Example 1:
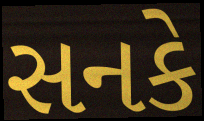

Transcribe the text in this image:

સનકે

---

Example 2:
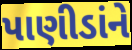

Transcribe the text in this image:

પાણીડાંને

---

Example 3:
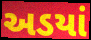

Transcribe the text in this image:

અડયાં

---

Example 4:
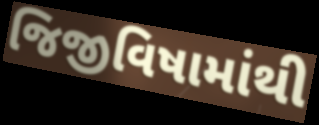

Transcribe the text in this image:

જિજીવિષામાંથી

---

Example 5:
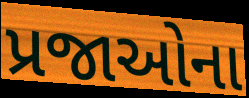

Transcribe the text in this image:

પ્રજાઓના